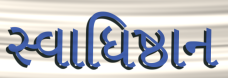
સ્વાધિષ્ઠાન